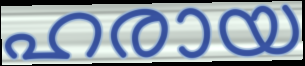
ഹരായ